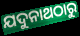
ଯଦୁନାଥଠାରୁ